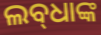
ଲବ୍‌ଧାଙ୍କ